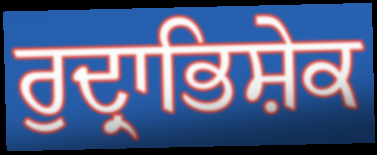
ਰੁਦ੍ਰਾਭਿਸ਼ੇਕ